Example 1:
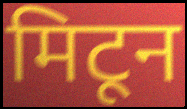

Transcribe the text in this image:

मिटून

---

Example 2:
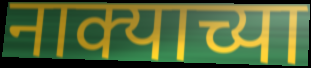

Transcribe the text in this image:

नाक्याच्या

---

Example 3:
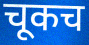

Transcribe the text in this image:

चूकच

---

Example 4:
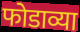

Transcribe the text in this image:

फोडाव्या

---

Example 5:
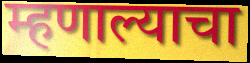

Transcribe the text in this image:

म्हणाल्याचा